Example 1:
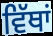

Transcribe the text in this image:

ਵਿੱਥਾਂ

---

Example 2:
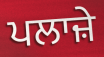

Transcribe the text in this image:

ਪਲਾਜ਼ੇ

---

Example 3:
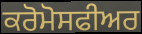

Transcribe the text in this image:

ਕਰੋਮੋਸਫੀਅਰ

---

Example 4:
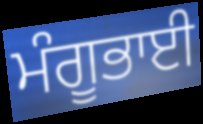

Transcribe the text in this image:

ਮੰਗੂਭਾਈ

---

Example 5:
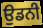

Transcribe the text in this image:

ਉਡਨੀ